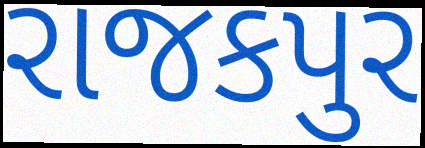
રાજકપુર